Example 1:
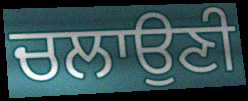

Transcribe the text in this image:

ਚਲਾਉਣੀ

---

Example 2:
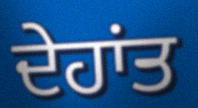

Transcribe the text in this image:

ਦੇਹਾਂਤ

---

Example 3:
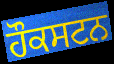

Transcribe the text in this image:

ਹੌਕਸਟਨ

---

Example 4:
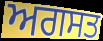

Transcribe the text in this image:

ਅਗਸਤ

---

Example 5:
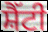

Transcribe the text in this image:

ਸ਼ੈੱਟੀ